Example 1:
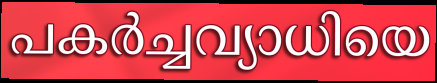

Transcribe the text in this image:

പകർച്ചവ്യാധിയെ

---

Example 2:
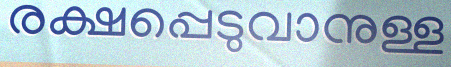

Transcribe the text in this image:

രക്ഷപ്പെടുവാനുള്ള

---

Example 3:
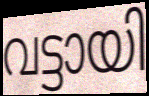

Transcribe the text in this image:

വട്ടായി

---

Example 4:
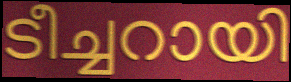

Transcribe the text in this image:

ടീച്ചറായി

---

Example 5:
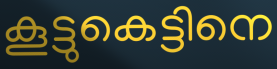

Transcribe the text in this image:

കൂട്ടുകെട്ടിനെ